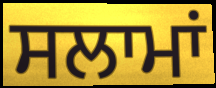
ਸਲਾਮਾਂ